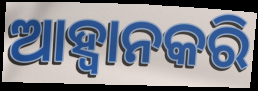
ଆହ୍ୱାନକରି